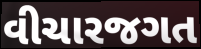
વીચારજગત